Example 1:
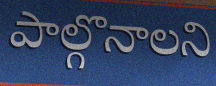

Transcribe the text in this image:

పాల్గొనాలని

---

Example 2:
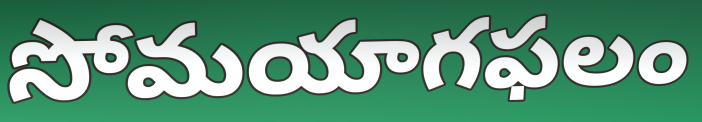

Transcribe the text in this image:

సోమయాగఫలం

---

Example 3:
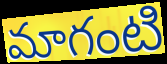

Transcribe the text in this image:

మాగంటి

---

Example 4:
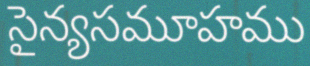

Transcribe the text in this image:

సైన్యసమూహము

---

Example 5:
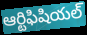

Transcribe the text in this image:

ఆర్టిఫిషియల్